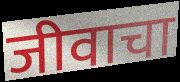
जीवाचा